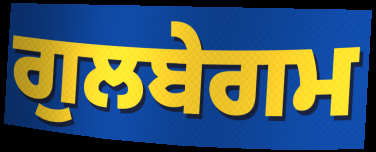
ਗੁਲਬੇਗਮ